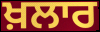
ਖ਼ਲਾਰ